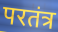
परतंत्र